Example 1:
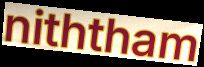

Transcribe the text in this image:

niththam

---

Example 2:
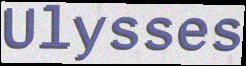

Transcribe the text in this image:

Ulysses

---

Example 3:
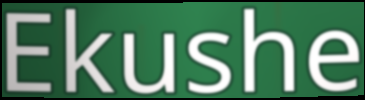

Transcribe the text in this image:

Ekushe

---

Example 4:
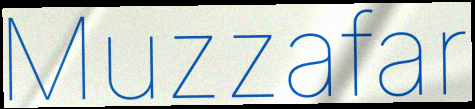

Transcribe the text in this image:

Muzzafar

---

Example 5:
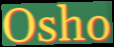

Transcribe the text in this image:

Osho